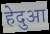
हेदुआ